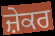
ਜ਼ੇਕਰ